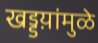
खड्डय़ांमुळे